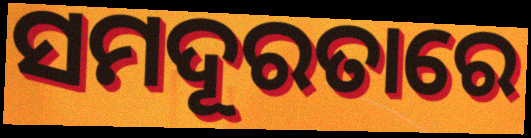
ସମଦୂରତାରେ